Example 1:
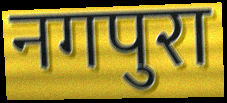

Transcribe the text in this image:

नगपुरा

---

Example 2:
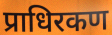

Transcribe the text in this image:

प्राधिरकण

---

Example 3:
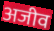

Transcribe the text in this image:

अजीव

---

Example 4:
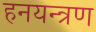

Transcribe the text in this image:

हनयन्त्रण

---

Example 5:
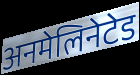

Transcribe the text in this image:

अनमेलिनेटेड